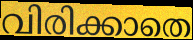
വിരിക്കാതെ